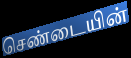
செண்டையின்